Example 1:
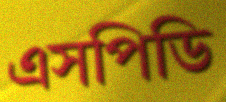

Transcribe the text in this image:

এসপিডি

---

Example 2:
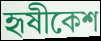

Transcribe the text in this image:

হৃষীকেশ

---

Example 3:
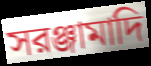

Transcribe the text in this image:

সরঞ্জামাদি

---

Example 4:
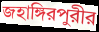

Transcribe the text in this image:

জহাঙ্গিরপুরীর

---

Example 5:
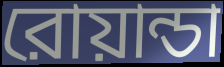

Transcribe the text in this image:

রোয়ান্ডা